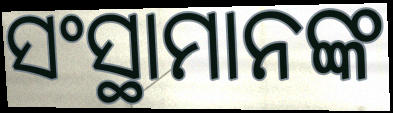
ସଂସ୍ଥାମାନଙ୍କ